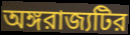
অঙ্গরাজ্যটির